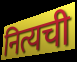
नित्यची